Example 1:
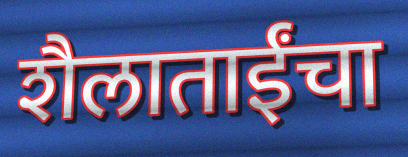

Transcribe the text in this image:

शैलाताईंचा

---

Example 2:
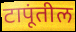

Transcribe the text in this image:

टापूंतील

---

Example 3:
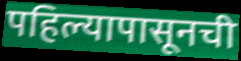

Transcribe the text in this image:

पहिल्यापासूनची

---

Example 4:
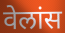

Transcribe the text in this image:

वेलांस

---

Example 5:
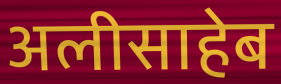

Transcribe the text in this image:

अलीसाहेब